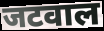
जटवाल